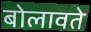
बोलावते